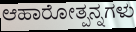
ಆಹಾರೋತ್ಪನ್ನಗಳು